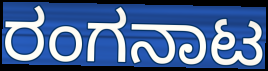
ರಂಗನಾಟ